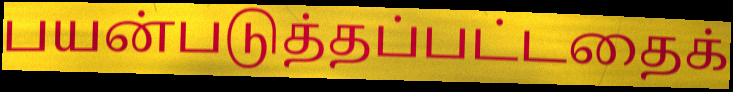
பயன்படுத்தப்பட்டதைக்